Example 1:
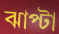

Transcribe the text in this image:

ঝাপ্টা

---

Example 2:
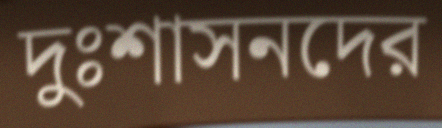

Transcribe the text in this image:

দুঃশাসনদের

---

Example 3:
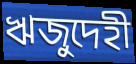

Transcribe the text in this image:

ঋজুদেহী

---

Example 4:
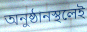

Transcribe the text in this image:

অনুষ্ঠানস্থলেই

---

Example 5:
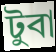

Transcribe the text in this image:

টুবা